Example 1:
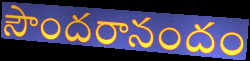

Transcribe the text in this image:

సౌందరానందం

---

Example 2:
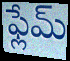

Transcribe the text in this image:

ఫ్లేమ్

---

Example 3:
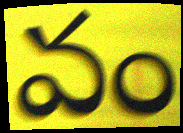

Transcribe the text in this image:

వం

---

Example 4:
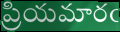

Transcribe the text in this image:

ప్రియమారఁ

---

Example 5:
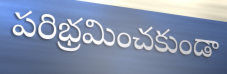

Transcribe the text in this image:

పరిభ్రమించకుండా